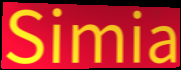
Simia